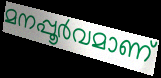
മനപ്പൂർവമാണ്